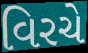
વિરચે